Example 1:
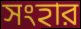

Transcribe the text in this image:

সংহার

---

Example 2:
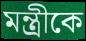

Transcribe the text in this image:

মন্ত্রীকে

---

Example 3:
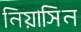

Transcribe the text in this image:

নিয়াসিন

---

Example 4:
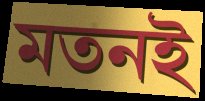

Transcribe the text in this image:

মতনই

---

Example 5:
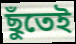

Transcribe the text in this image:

ছুঁতেই